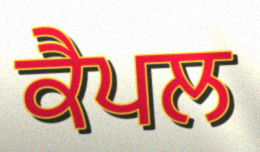
ਕੈਪਲ